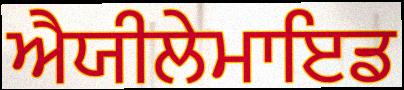
ਐਯੀਲੇਮਾਇਡ